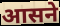
आसने